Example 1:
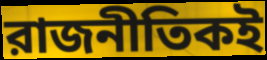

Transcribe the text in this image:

রাজনীতিকই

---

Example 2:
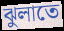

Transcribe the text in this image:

ঝুলাতে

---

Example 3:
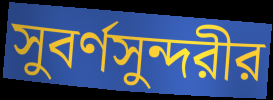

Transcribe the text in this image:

সুবর্ণসুন্দরীর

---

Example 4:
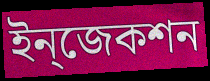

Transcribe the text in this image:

ইন্‌জেকশন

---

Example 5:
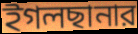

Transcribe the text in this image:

ইগলছানার